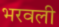
भरवली